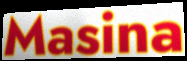
Masina